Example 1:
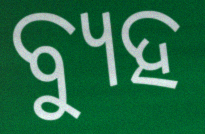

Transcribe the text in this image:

ବ୍ୟୁହ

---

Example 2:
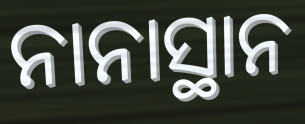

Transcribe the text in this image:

ନାନାସ୍ଥାନ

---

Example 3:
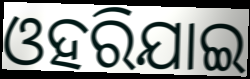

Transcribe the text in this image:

ଓହରିଯାଇ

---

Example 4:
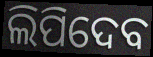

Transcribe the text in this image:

ଲିପିଦେବ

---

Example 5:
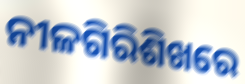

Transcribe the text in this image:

ନୀଳଗିରିଶିଖରେ